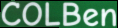
COLBen